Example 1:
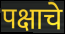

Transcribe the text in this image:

पक्षाचे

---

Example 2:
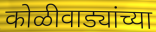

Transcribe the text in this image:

कोळीवाड्यांच्या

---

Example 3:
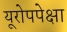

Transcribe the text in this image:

यूरोपपेक्षा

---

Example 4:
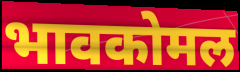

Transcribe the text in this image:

भावकोमल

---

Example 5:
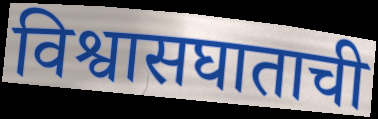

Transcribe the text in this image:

विश्वासघाताची